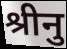
श्रीनु